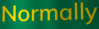
Normally